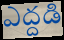
ఎద్దడి